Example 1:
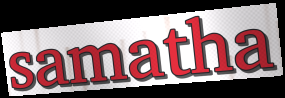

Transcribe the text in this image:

samatha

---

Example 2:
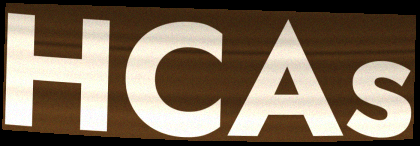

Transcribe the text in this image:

HCAs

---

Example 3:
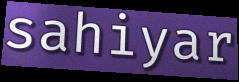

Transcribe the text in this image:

sahiyar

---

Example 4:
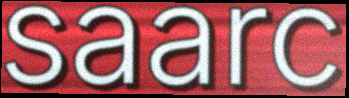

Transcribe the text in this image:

saarc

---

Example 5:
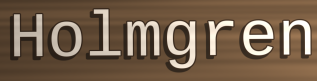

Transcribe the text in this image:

Holmgren